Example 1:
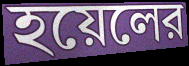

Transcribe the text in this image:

হয়েলের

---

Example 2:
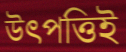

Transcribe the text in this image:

উৎপত্তিই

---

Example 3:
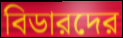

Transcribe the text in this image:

বিডারদের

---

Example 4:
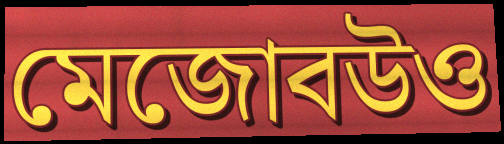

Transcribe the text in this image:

মেজোবউও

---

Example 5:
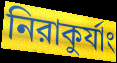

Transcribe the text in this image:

নিরাকুর্যাং